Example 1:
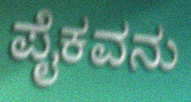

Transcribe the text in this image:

ಪೈಕವನು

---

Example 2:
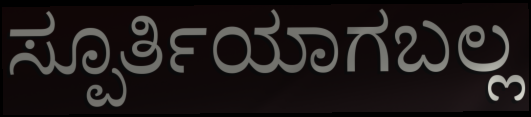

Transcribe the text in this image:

ಸ್ಪೂರ್ತಿಯಾಗಬಲ್ಲ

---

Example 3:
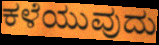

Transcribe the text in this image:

ಕಳೆಯುವುದು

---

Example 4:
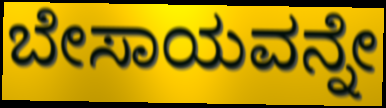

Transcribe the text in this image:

ಬೇಸಾಯವನ್ನೇ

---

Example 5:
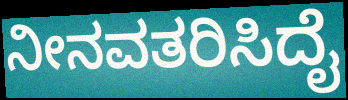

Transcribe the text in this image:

ನೀನವತರಿಸಿದೈ